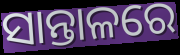
ସାନ୍ତାଳରେ